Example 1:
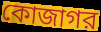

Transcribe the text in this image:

কোজাগর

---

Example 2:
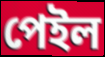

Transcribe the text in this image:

পেইল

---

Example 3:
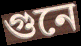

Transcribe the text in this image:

গুনে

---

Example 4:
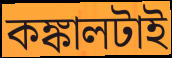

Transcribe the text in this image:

কঙ্কালটাই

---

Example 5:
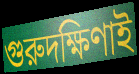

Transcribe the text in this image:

গুরুদক্ষিণাই